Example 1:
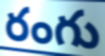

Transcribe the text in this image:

రంగు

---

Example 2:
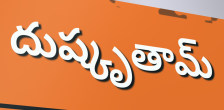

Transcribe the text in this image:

దుష్కృతామ్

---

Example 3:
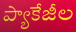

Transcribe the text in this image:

ప్యాకేజీల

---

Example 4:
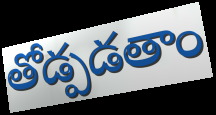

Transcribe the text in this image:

తోడ్పడతాం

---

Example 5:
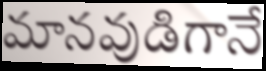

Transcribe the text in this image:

మానవుడిగానే